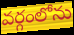
వర్గంలోను